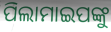
ପିଲାମାଇପଙ୍କୁ